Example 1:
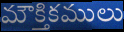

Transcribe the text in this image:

మౌక్తికములు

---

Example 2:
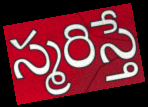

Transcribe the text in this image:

స్మరిస్తే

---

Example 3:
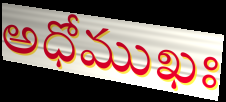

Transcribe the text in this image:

అధోముఖః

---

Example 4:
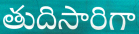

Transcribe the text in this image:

తుదిసారిగా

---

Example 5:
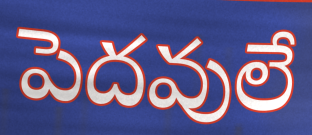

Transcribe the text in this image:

పెదవులే